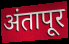
अंतापूर